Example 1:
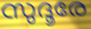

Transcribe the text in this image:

സുദൂരേ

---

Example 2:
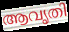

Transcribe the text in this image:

ആവൃതി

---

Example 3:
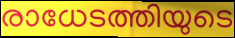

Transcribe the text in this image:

രാധേടത്തിയുടെ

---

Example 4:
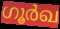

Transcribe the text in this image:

ഗൂർഖ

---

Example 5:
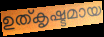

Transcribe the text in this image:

ഉത്കൃഷ്ടമായ